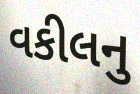
વકીલનુ